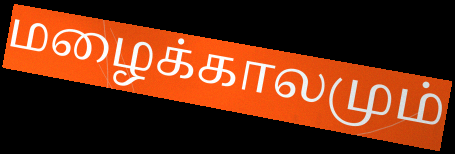
மழைக்காலமும்